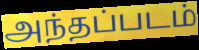
அந்தப்படம்